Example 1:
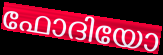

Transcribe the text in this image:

ഫോദിയോ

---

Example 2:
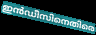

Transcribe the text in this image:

ഇൻഡീസിനെതിരെ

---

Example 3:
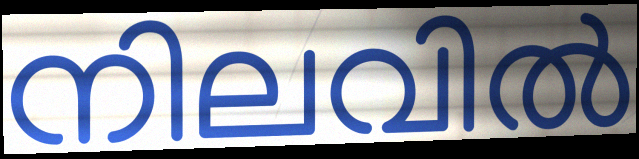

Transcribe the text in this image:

നിലവിൽ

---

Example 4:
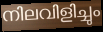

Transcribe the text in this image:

നിലവിളിച്ചും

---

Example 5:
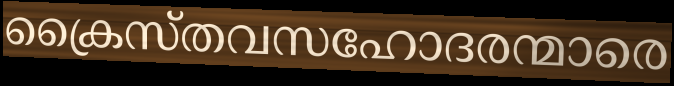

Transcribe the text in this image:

ക്രൈസ്തവസഹോദരന്മാരെ